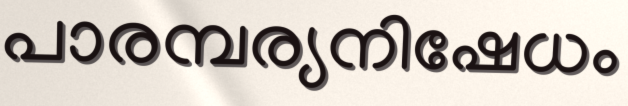
പാരമ്പര്യനിഷേധം